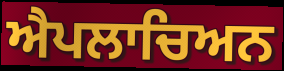
ਐਪਲਾਚਿਅਨ